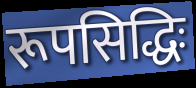
रूपसिद्धिः